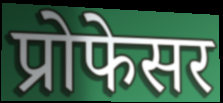
प्रोफेसर